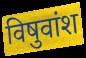
विषुवांश